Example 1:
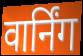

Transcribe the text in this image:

वार्निंग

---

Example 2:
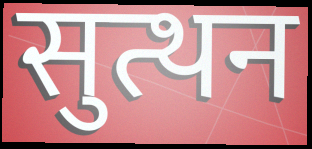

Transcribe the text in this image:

सुत्थन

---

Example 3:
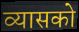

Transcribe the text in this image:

व्यासको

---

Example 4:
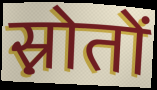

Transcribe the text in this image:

स्नोतों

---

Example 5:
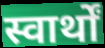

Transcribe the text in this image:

स्वार्थों